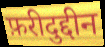
फ़रीदुद्दीन